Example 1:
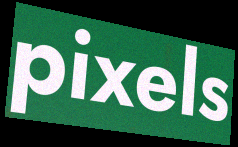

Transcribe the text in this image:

pixels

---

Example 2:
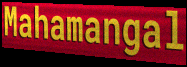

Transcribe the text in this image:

Mahamangal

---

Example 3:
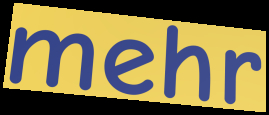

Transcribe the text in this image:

mehr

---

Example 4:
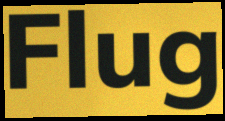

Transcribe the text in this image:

Flug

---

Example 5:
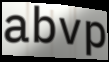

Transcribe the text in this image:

abvp